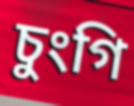
চুংগি